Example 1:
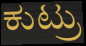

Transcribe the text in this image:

ಕುಟ್ರು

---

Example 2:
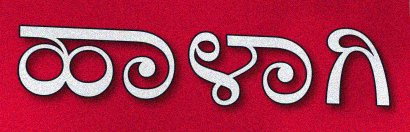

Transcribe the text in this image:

ಹಾಳಾಗಿ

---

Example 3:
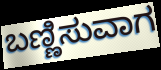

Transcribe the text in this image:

ಬಣ್ಣಿಸುವಾಗ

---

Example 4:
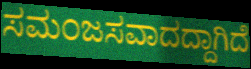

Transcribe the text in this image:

ಸಮಂಜಸವಾದದ್ದಾಗಿದೆ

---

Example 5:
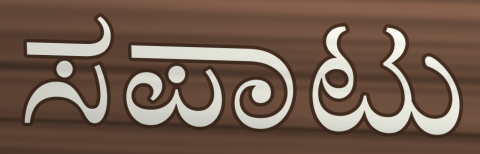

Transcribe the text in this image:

ಸಪಾಟು